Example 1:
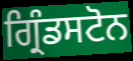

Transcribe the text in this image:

ਗ੍ਰਿੰਡਸਟੋਨ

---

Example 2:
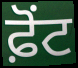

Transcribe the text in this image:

ਫ਼ੋਂਟ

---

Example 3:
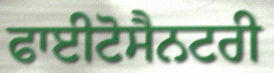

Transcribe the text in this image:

ਫਾਈਟੋਸੈਨਟਰੀ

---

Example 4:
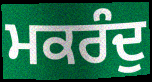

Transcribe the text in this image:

ਮਕਰੰਦੁ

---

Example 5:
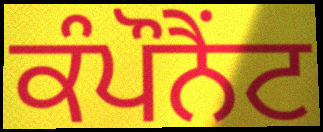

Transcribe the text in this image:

ਕੰਪੌਨੈਂਟ